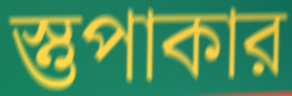
স্তুপাকার